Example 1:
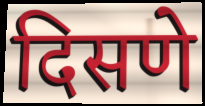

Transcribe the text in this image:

दिसणे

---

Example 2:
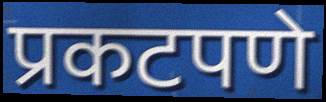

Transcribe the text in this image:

प्रकटपणे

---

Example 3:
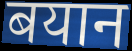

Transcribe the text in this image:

बयान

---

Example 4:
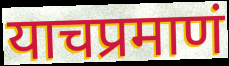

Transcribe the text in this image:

याचप्रमाणं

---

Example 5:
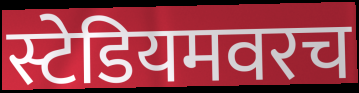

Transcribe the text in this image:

स्टेडियमवरच